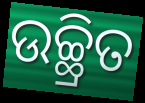
ଉଚ୍ଛ୍ରିତ